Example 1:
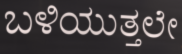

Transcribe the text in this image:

ಬಳಿಯುತ್ತಲೇ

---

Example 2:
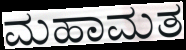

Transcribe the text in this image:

ಮಹಾಮತ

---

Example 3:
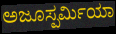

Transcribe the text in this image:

ಅಜೂಸ್ಪರ್ಮಿಯಾ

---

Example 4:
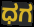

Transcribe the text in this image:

ಧಗ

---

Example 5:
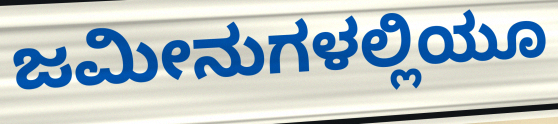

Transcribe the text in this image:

ಜಮೀನುಗಳಲ್ಲಿಯೂ